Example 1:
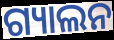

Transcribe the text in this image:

ଗ୍ୟାଲନ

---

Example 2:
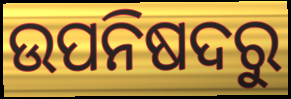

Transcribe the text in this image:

ଉପନିଷଦରୁ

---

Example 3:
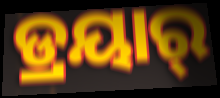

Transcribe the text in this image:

ଡ୍ରୟାର୍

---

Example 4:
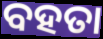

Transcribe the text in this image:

ବହତା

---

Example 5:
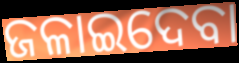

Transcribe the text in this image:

ଜଳାଇଦେବା